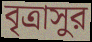
বৃত্রাসুর